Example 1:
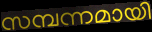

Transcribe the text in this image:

സമ്പന്നമായി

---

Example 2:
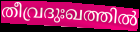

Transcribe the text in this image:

തീവ്രദുഃഖത്തിൽ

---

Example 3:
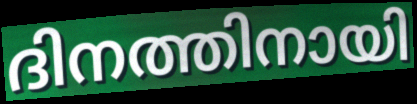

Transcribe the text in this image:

ദിനത്തിനായി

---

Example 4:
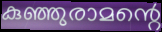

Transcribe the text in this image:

കുഞ്ഞുരാമന്റെ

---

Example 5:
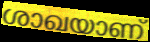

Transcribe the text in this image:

ശാഖയാണ്